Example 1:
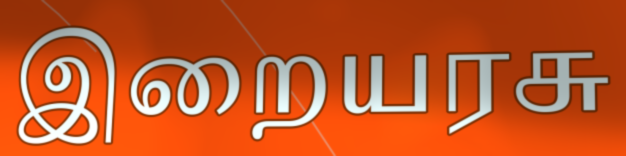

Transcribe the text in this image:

இறையரசு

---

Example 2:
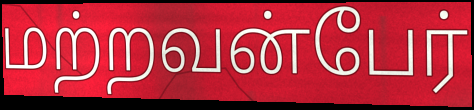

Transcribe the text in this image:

மற்றவன்பேர்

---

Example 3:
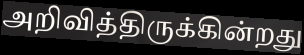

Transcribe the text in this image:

அறிவித்திருக்கின்றது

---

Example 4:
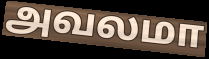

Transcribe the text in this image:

அவலமா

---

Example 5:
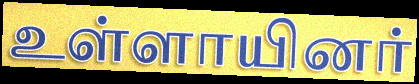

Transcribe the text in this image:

உள்ளாயினர்